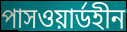
পাসওয়ার্ডহীন